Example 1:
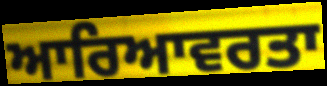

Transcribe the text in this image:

ਆਰਿਆਵਰਤਾ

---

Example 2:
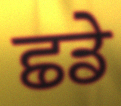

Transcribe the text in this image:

ਛਡੇ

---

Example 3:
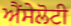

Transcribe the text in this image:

ਐਂਸੇਲੋਟੀ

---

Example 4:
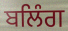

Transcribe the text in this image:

ਬਲਿੰਗ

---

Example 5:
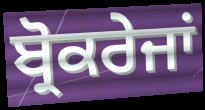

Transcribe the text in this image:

ਬ੍ਰੋਕਰੇਜਾਂ